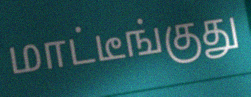
மாட்டீங்குது